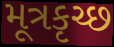
મૂત્રકૃચ્છ